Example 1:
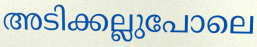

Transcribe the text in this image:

അടിക്കല്ലുപോലെ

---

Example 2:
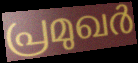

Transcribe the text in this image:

പ്രമുഖർ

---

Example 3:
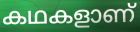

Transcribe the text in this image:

കഥകളാണ്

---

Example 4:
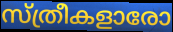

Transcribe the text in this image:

സ്ത്രീകളാരോ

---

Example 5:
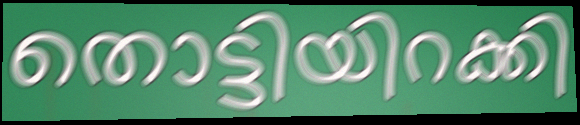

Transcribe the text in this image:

തൊട്ടിയിറക്കി